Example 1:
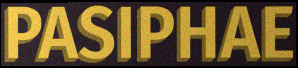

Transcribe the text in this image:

PASIPHAE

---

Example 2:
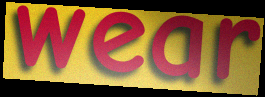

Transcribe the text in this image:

wear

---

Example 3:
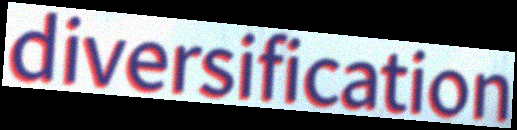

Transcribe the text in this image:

diversification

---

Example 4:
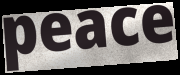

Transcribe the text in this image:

peace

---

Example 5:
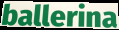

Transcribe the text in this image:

ballerina